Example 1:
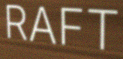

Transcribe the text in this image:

RAFT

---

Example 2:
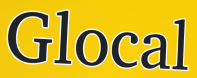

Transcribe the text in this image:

Glocal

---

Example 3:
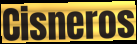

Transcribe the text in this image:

Cisneros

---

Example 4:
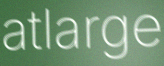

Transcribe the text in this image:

atlarge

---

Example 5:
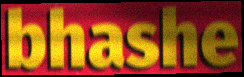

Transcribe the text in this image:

bhashe